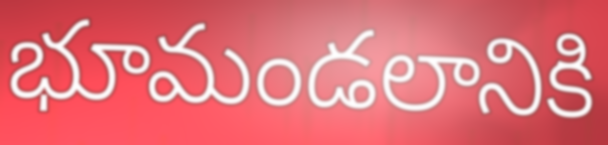
భూమండలానికి